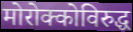
मोरोक्कोविरुद्ध